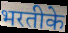
भरतीके